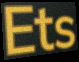
Ets